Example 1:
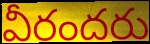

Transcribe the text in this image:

వీరందరు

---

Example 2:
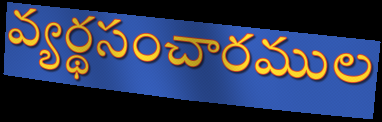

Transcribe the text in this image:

వ్యర్థసంచారముల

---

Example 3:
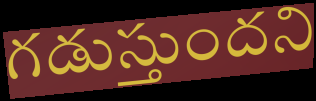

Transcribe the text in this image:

గడుస్తుందని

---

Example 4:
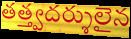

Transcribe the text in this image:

తత్త్వదర్శులైన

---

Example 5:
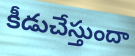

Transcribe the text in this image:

కీడుచేస్తుందా